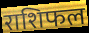
राशिफल